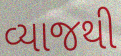
વ્યાજથી